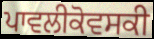
ਪਾਵਲੀਕੋਵਸਕੀ